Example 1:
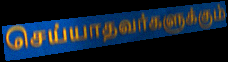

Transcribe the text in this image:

செய்யாதவர்களுக்கும்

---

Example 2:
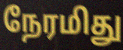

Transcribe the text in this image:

நேரமிது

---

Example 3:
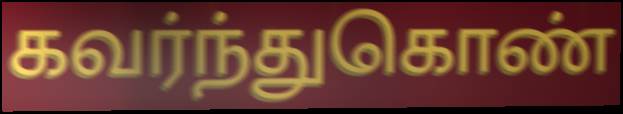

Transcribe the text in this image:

கவர்ந்துகொண்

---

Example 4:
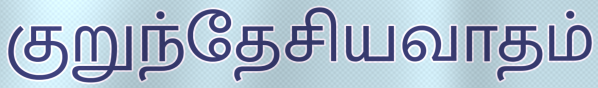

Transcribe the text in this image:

குறுந்தேசியவாதம்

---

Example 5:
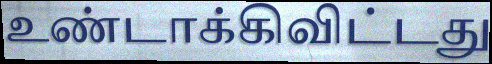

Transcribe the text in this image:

உண்டாக்கிவிட்டது